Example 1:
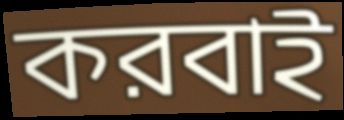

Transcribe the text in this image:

করবাই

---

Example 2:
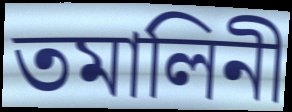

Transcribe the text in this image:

তমালিনী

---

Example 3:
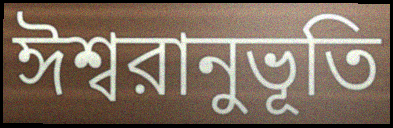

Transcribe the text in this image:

ঈশ্বরানুভূতি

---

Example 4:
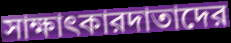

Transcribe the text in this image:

সাক্ষাৎকারদাতাদের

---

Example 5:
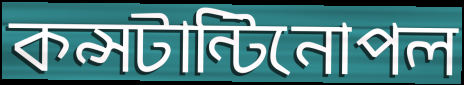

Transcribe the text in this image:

কন্সটান্টিনোপল